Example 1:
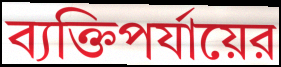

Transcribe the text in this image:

ব্যক্তিপর্যায়ের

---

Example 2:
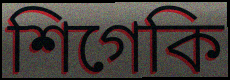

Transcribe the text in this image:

শিগেকি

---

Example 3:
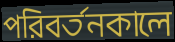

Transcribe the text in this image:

পরিবর্তনকালে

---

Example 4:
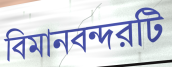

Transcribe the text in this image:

বিমানবন্দরটি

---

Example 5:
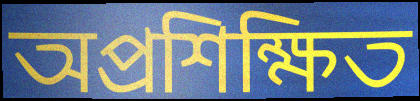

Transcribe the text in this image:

অপ্রশিক্ষিত